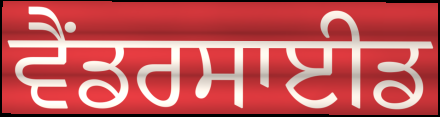
ਵੈਂਡਰਸਾਈਡ